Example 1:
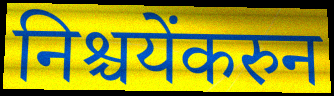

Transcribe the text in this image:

निश्चयेंकरुन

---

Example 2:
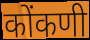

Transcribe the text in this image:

कोंकणी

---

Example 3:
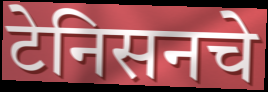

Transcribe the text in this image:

टेनिसनचे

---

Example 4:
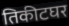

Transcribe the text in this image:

तिकीटघर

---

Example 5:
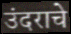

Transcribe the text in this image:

उंदराचे